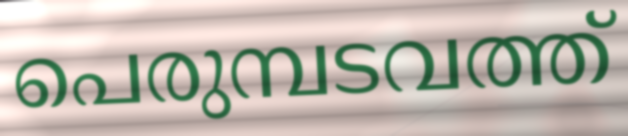
പെരുമ്പടവത്ത്